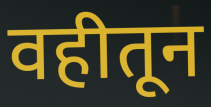
वहीतून